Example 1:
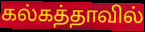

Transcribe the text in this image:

கல்கத்தாவில்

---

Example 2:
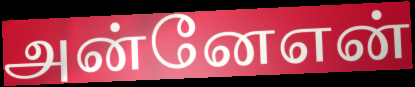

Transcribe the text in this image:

அன்னேஎன்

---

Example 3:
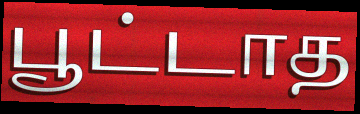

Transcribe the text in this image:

பூட்டாத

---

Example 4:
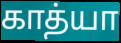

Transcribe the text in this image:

காத்யா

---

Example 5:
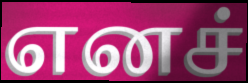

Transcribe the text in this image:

எனச்